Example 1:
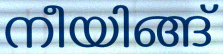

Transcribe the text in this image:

നീയിങ്ങ്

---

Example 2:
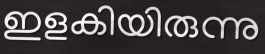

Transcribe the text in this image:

ഇളകിയിരുന്നു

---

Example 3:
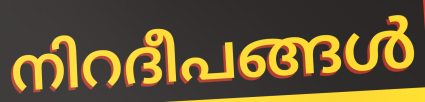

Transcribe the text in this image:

നിറദീപങ്ങൾ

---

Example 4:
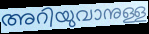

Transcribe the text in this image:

അറിയുവാനുള്ള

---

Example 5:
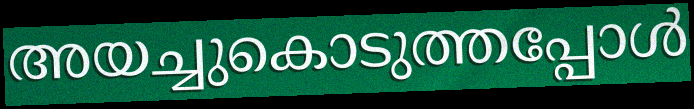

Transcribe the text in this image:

അയച്ചുകൊടുത്തപ്പോൾ